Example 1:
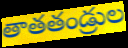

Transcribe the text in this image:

తాతతండ్రుల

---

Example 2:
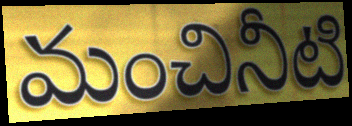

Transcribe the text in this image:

మంచినీటి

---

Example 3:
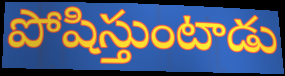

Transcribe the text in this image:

పోషిస్తుంటాడు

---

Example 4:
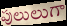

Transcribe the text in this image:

పులులుగా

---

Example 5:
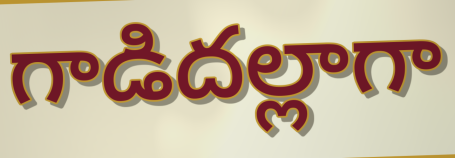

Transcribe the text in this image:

గాడిదల్లాగా